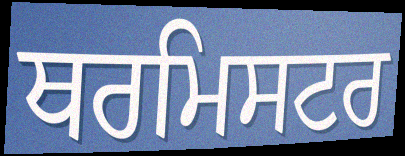
ਥਰਮਿਸਟਰ